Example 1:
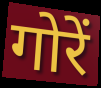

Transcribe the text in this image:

गोरें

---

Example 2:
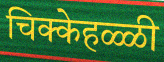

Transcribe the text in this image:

चिक्केहळ्ळी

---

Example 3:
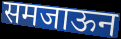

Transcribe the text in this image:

समजाऊन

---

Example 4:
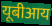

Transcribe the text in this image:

यूबीआय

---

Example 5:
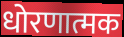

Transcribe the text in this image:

धोरणात्मक